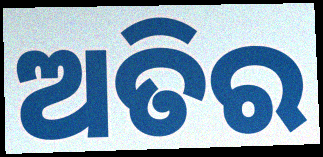
ଅତିର